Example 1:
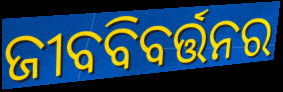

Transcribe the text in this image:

ଜୀବବିବର୍ତ୍ତନର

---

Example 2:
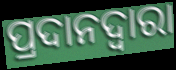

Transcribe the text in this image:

ପ୍ରଦାନଦ୍ୱାରା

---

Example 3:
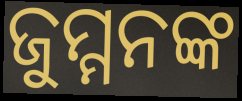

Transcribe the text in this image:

ଜୁମ୍ମନଙ୍କ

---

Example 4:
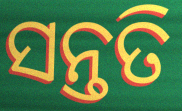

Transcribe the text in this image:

ସନ୍ତତି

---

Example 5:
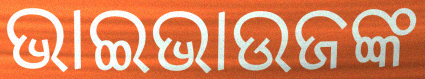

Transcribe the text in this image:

ଭାଇଭାଉଜଙ୍କ